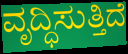
ವೃದ್ಧಿಸುತ್ತಿದೆ